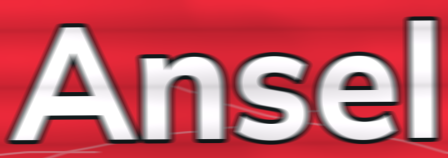
Ansel